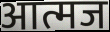
आत्मज